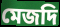
মেজদি